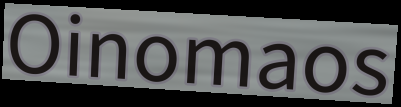
Oinomaos